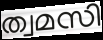
ത്വമസി